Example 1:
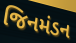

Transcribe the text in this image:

જિનમંડન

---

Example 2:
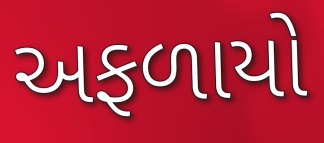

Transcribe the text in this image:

અફળાયો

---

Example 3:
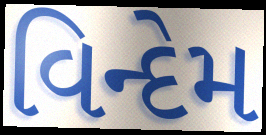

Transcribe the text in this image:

વિન્દેમ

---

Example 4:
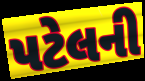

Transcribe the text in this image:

પટેલની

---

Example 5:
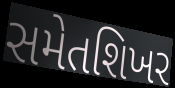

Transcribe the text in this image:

સમેતશિખર